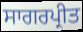
ਸਾਗਰਪ੍ਰੀਤ